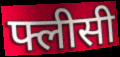
फ्लीसी